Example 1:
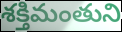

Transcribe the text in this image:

శక్తిమంతుని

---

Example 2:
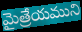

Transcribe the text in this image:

మైత్రేయముని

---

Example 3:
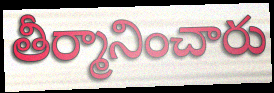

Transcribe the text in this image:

తీర్మానించారు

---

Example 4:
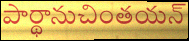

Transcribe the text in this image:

పార్థానుచింతయన్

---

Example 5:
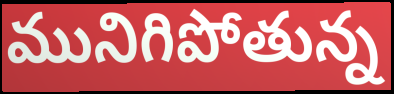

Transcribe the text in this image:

మునిగిపోతున్న